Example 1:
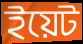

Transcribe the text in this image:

ইয়েট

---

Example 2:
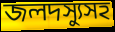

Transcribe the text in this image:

জলদস্যুসহ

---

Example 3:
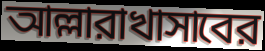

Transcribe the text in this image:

আল্লারাখাসাবের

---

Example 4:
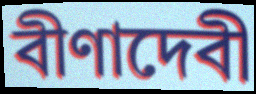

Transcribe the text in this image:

বীণাদেবী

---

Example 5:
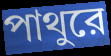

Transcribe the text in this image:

পাথুরে